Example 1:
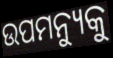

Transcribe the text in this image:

ଉପମନ୍ୟୁକୁ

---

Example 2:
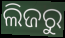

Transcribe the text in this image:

ଲିଜରୁ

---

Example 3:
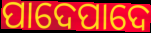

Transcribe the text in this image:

ପାଦେପାଦେ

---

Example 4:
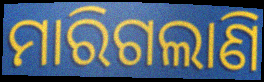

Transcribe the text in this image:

ମାରିଗଲାଣି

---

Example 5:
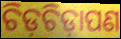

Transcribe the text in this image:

ଚିଡ଼ଚିଡ଼ାପଣ